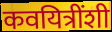
कवयित्रींशी